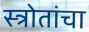
स्त्रोतांचा